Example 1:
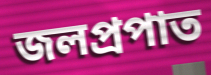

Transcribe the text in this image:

জলপ্রপাত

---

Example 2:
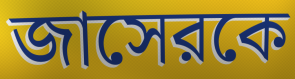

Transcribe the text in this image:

জাসেরকে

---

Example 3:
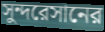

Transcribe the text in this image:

সুন্দরেসানের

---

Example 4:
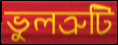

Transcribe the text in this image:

ভুলত্রুটি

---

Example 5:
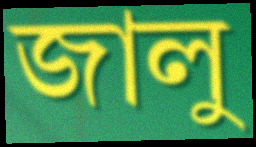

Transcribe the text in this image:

জালু